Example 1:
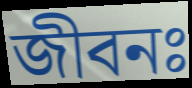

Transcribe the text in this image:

জীবনঃ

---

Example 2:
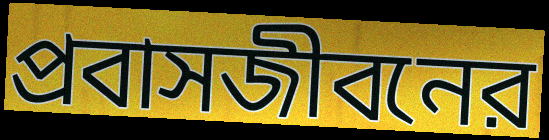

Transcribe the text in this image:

প্রবাসজীবনের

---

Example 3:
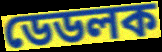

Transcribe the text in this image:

ডেডলক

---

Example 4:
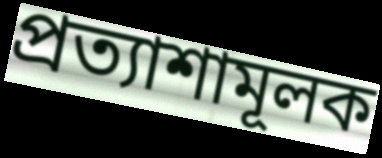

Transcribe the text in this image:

প্রত্যাশামূলক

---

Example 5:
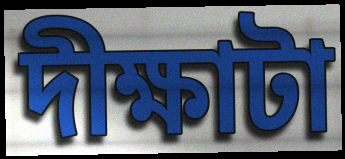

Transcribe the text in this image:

দীক্ষাটা